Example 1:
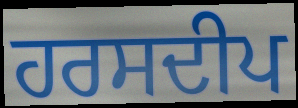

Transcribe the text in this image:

ਹਰਸਦੀਪ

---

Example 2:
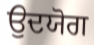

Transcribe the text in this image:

ਉਦਯੋਗ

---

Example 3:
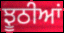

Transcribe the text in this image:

ਝੂਠੀਆਂ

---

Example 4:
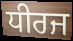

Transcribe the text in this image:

ਧੀਰਜ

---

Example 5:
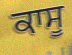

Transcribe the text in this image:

ਕਾਸੂ